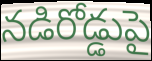
నడిరోడ్డుపై